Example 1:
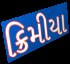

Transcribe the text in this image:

ક્રિમીયા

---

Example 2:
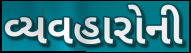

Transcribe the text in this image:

વ્યવહારોની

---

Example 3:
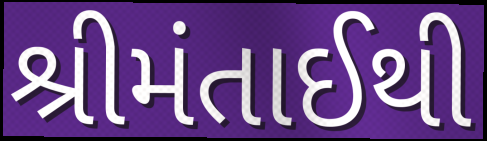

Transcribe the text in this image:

શ્રીમંતાઈથી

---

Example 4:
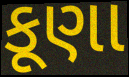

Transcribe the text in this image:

કૂણા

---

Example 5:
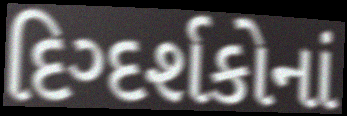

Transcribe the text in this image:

દિગ્દર્શકોનાં